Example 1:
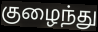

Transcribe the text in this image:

குழைந்து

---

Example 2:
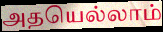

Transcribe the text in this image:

அதயெல்லாம்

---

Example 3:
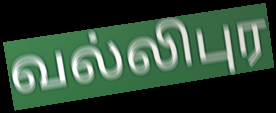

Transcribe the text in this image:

வல்லிபுர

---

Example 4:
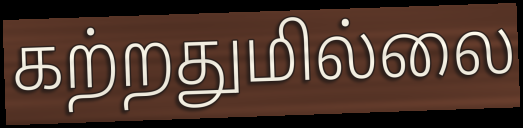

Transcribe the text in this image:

கற்றதுமில்லை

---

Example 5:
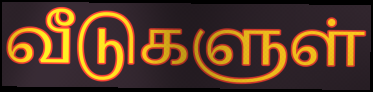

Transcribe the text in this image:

வீடுகளுள்